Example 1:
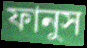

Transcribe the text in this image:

ফানুস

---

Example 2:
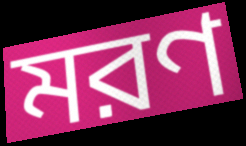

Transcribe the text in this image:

মরণ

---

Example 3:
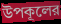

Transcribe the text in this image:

উপকূলের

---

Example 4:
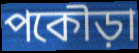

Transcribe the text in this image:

পকৌড়া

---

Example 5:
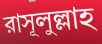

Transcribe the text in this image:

রাসূলুল্লাহ